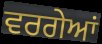
ਵਰਗੇਆਂ